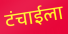
टंचाईला